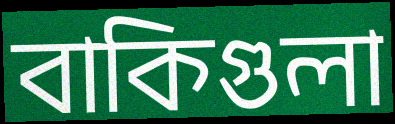
বাকিগুলা